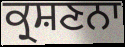
ਕ੍ਰਸ਼ਣਨਾ